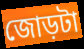
জোড়টা